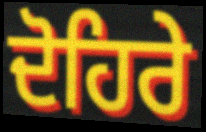
ਦੋਹਿਰੇ